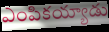
ఎంపికయ్యాడు